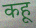
कहू